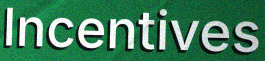
Incentives